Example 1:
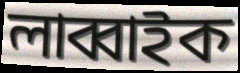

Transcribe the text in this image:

লাব্বাইক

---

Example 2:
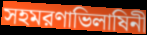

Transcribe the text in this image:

সহমরণাভিলাষিনী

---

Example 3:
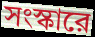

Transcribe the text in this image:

সংস্কারে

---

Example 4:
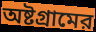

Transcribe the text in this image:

অষ্টগ্রামের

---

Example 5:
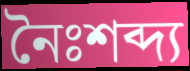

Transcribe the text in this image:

নৈঃশব্দ্য